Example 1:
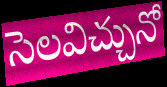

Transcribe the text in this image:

సెలవిచ్చునో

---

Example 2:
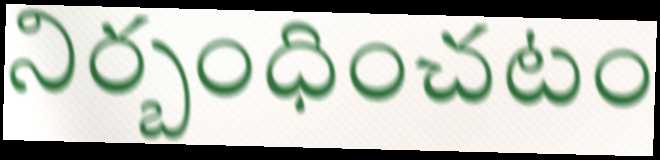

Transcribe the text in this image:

నిర్బంధించటం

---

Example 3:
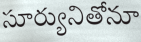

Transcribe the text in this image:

సూర్యునితోనూ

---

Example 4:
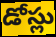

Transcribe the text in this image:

డోస్లు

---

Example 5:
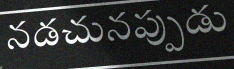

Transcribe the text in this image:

నడచునప్పుడు